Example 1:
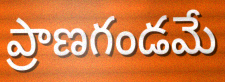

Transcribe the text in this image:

ప్రాణగండమే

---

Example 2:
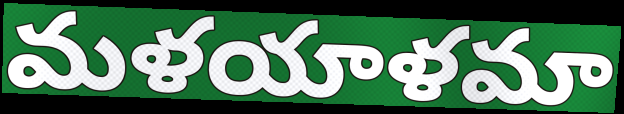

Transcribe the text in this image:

మళయాళమా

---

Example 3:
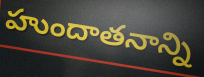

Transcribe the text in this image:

హుందాతనాన్ని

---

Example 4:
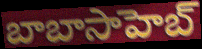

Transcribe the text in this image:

బాబాసాహెబ్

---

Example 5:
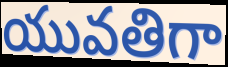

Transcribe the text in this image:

యువతిగా